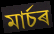
মাৰ্চৰ